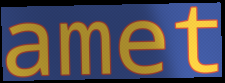
amet